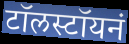
टॉलस्टॉयनं